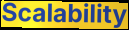
Scalability